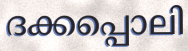
ദക്കപ്പൊലി